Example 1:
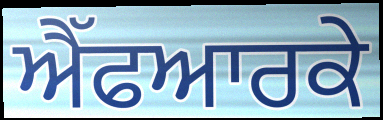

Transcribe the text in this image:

ਐੱਫਆਰਕੇ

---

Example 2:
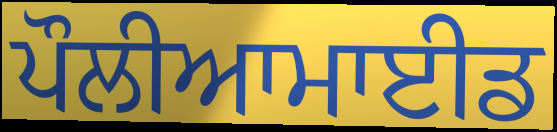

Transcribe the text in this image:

ਪੌਲੀਆਮਾਈਡ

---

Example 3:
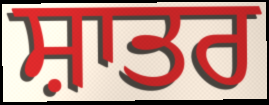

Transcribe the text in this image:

ਸ਼ਾਤਰ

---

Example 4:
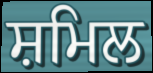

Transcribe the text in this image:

ਸ਼ਮਿਲ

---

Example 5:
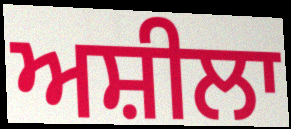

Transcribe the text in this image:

ਅਸ਼ੀਲਾ